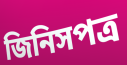
জিনিসপত্র